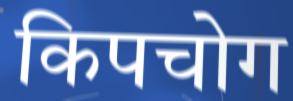
किपचोग